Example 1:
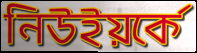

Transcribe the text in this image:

নিউইয়র্কে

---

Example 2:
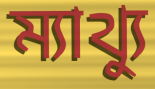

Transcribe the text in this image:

ম্যাথ্যু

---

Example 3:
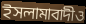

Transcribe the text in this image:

ইসলামাবাদীও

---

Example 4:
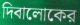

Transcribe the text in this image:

দিবালোকের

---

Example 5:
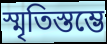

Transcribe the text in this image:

স্মৃতিস্তম্ভে